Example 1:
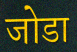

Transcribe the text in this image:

जोडा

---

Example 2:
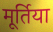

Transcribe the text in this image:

मूर्तिया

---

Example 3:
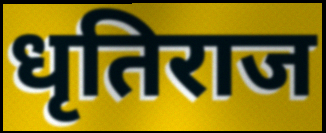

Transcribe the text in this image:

धृतिराज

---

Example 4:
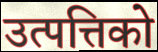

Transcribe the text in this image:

उत्पत्तिको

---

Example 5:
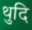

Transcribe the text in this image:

थुदि